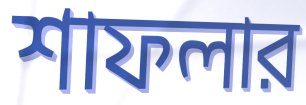
শাফলার